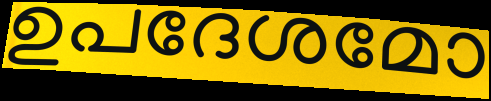
ഉപദേശമോ